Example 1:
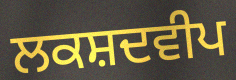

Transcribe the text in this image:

ਲਕਸ਼ਦਵੀਪ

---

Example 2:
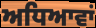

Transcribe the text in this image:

ਅਧਿਆਵਾਂ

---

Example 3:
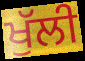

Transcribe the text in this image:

ਖੁੱਲੀ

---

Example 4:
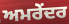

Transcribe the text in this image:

ਅਮਰੇਂਦਰ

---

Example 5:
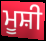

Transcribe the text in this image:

ਮੂਸ਼ੀ